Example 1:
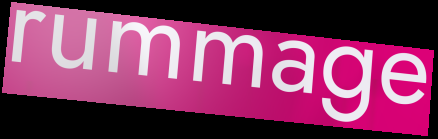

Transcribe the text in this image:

rummage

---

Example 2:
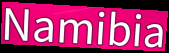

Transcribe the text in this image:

Namibia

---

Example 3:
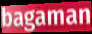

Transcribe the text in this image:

bagaman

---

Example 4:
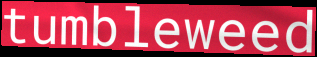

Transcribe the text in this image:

tumbleweed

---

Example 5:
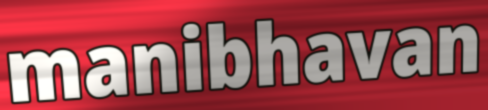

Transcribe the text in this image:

manibhavan